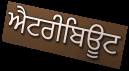
ਐਟਰੀਬਿਊਟ